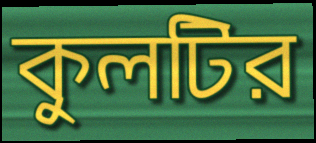
কুলটির